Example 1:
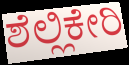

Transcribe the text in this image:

ಶೆಲ್ಲಿಕೇರಿ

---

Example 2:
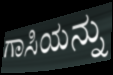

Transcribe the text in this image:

ಗಾಸಿಯನ್ನು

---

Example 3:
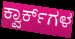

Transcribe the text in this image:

ಕ್ವಾರ್ಕ್‌ಗಳ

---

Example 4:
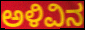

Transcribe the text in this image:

ಅಳಿವಿನ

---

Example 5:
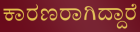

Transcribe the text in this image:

ಕಾರಣರಾಗಿದ್ದಾರೆ